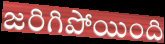
జరిగిపోయింది